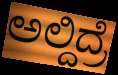
ಅಲ್ದಿದ್ರೆ